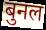
बुनल